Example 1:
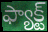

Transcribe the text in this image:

ఫ్యాక్ట్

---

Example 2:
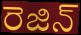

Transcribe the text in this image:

రెజిన్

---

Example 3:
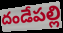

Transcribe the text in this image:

దండేపల్లి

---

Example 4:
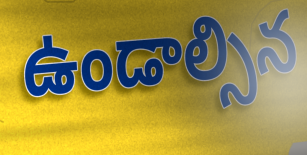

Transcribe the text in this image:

ఉండాల్సిన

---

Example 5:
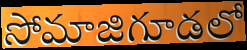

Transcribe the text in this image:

సోమాజిగూడలో